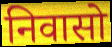
निवासो